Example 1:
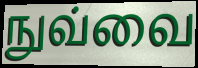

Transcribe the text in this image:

நுவ்வை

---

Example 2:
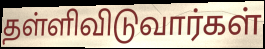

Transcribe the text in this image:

தள்ளிவிடுவார்கள்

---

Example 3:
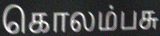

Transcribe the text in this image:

கொலம்பசு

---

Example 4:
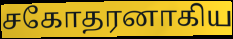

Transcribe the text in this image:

சகோதரனாகிய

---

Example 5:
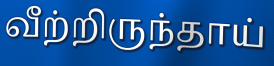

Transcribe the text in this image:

வீற்றிருந்தாய்